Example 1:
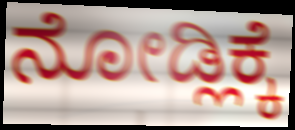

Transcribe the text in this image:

ನೋಡ್ಲಿಕ್ಕೆ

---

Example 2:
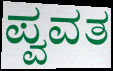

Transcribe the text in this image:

ಪ್ವವತ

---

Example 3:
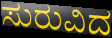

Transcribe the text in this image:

ಸುರುವಿದ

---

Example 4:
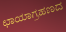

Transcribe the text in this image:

ಛಾಯಾಗ್ರಹಣದ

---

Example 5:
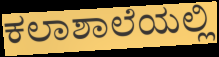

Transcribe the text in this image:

ಕಲಾಶಾಲೆಯಲ್ಲಿ